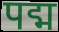
पद्म